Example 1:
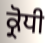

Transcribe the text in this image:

ਕ੍ਰੋਧੀ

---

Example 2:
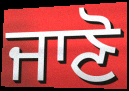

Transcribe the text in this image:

ਜਾਣੋ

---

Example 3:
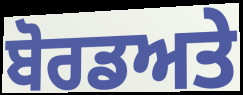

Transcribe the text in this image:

ਬੋਰਡਅਤੇ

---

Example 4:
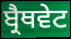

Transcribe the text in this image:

ਬ੍ਰੈਥਵੇਟ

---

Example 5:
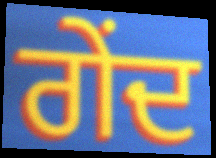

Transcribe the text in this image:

ਗੇਂਦ